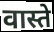
वास्ते